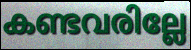
കണ്ടവരില്ലേ